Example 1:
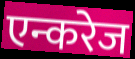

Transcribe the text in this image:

एन्करेज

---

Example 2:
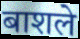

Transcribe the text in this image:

बाशले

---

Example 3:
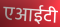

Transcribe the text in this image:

एआईटी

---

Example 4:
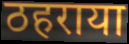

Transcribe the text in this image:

ठहराया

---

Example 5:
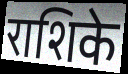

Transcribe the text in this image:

राशिके